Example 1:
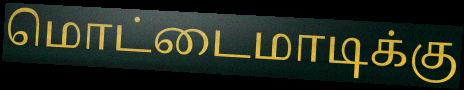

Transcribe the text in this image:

மொட்டைமாடிக்கு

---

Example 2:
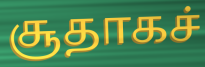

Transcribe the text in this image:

சூதாகச்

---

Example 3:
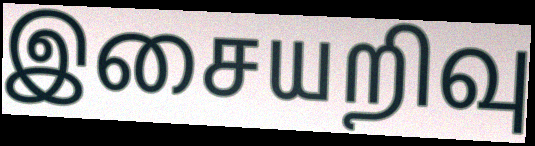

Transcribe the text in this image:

இசையறிவு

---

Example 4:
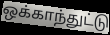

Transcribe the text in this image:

ஒக்காந்துட்டு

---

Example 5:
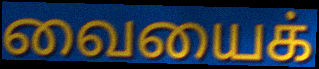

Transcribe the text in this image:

வையைக்